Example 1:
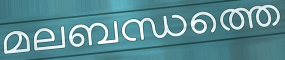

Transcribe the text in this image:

മലബന്ധത്തെ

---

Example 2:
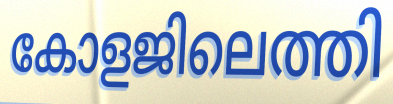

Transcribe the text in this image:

കോളജിലെത്തി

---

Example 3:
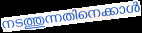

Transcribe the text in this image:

നടത്തുന്നതിനെക്കാൾ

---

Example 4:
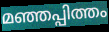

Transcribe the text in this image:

മഞ്ഞപ്പിത്തം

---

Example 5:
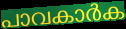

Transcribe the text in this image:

പാവകാർക